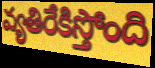
వ్యతిరేకిస్తోంది